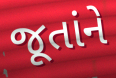
જૂતાંને